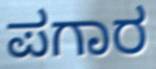
ಪಗಾರ